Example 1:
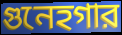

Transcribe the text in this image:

গুনেহগার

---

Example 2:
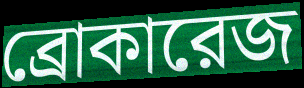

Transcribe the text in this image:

ব্রোকারেজ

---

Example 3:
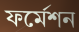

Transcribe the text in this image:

ফর্মেশন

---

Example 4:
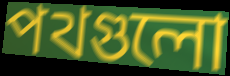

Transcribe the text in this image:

পথগুলো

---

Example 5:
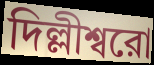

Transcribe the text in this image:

দিল্লীশ্বরো